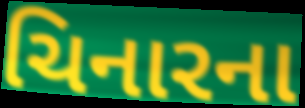
ચિનારના